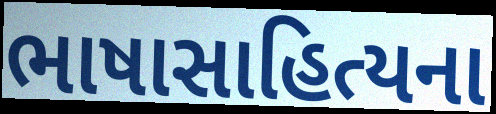
ભાષાસાહિત્યના